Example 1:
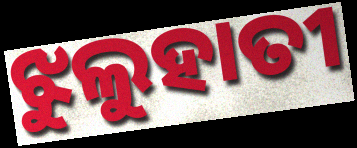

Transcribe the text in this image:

ଝୁଲୁହାତୀ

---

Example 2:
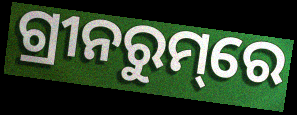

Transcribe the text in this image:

ଗ୍ରୀନରୁମ୍‌ରେ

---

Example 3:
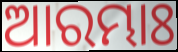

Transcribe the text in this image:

ଆରମ୍ଭାଃ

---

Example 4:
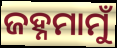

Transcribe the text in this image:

ଜହ୍ନମାମୁଁ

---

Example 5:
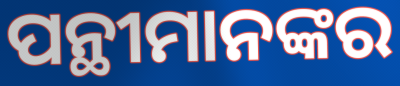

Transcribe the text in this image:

ପନ୍ଥୀମାନଙ୍କର